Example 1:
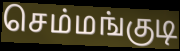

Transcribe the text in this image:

செம்மங்குடி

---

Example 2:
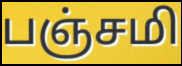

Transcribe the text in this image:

பஞ்சமி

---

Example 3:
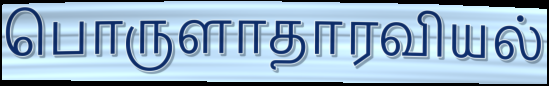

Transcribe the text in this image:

பொருளாதாரவியல்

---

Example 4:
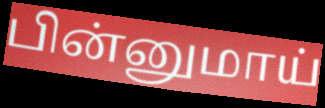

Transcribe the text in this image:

பின்னுமாய்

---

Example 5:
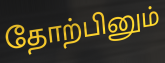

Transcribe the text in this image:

தோற்பினும்